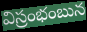
విస్రంభంబున